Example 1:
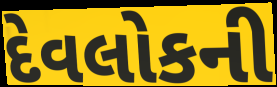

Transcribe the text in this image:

દેવલોકની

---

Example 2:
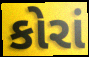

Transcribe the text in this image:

કોરાં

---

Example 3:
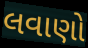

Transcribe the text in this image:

લવાણો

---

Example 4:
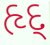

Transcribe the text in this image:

હૃદ્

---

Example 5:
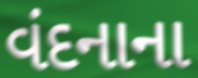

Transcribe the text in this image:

વંદનાના